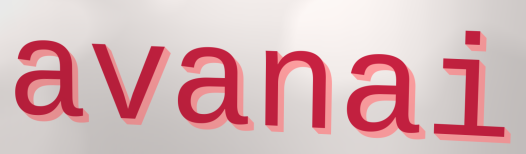
avanai